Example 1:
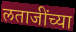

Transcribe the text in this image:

लताजींच्या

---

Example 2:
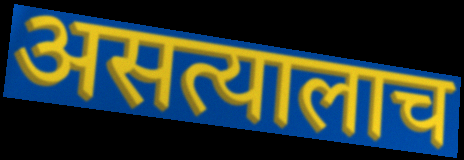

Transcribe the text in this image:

असत्यालाच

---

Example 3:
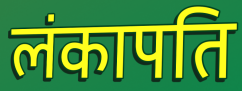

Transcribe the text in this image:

लंकापति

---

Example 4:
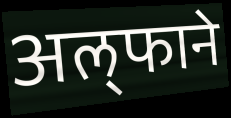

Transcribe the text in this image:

अल्फाने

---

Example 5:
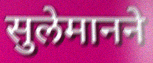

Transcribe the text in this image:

सुलेमानने